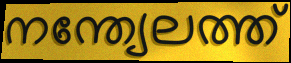
നന്ത്യേലത്ത്